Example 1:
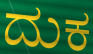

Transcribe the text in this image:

ದುಕ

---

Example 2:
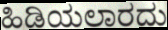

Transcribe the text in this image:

ಹಿಡಿಯಲಾರದು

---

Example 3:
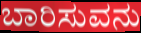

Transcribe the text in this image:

ಬಾರಿಸುವನು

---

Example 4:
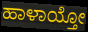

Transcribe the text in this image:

ಹಾಳಾಯ್ತೋ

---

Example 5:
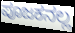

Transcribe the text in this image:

ಪೂಜಕನಲ್ಲ